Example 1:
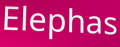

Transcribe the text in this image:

Elephas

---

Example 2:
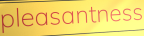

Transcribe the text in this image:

pleasantness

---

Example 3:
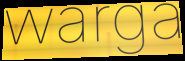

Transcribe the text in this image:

warga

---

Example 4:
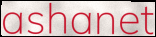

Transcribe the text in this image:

ashanet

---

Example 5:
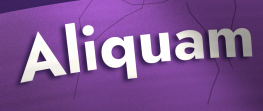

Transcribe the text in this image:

Aliquam